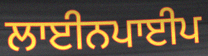
ਲਾਈਨਪਾਈਪ